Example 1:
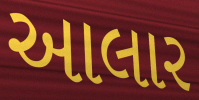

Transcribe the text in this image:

આલાર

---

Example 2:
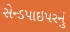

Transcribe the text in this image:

સેન્ડપાઇપરનું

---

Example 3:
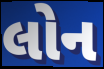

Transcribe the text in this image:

લોન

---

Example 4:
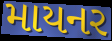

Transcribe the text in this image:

માયનર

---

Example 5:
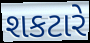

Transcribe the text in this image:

શકટારે